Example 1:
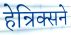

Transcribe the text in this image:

हेन्रिक्सने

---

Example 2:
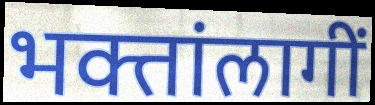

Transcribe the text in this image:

भक्तांलागीं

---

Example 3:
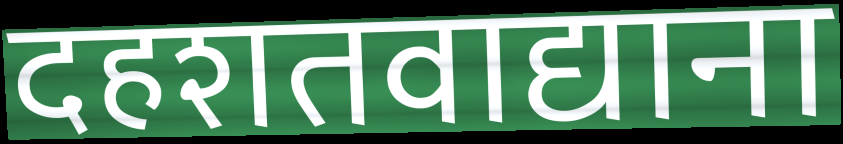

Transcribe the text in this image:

दहशतवाद्याना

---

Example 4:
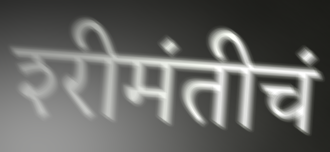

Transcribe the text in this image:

श्रीमंतीचं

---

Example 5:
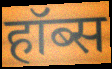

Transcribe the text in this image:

हॉब्स